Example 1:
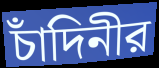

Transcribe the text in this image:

চাঁদিনীর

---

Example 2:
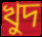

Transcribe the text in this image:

খুদ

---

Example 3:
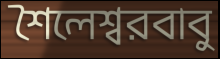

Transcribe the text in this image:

শৈলেশ্বরবাবু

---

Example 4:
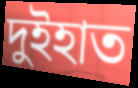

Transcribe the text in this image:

দুইহাত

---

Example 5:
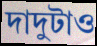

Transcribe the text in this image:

দাদুটাও